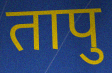
तापु